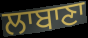
ਲਾਬਾਣਾ